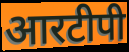
आरटीपी